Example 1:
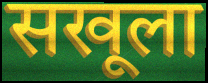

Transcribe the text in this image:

सखूला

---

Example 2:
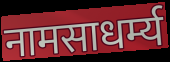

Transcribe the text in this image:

नामसाधर्म्य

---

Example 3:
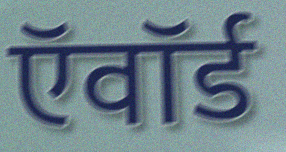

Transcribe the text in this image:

ऍवॉर्ड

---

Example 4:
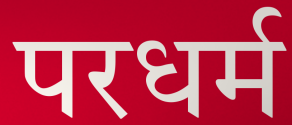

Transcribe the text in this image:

परधर्म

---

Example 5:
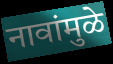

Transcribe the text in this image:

नावांमुळे